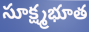
సూక్ష్మభూత